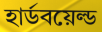
হার্ডবয়েল্ড